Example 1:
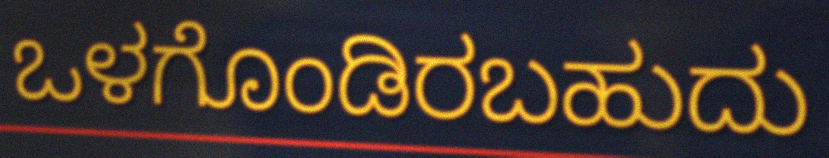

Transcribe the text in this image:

ಒಳಗೊಂಡಿರಬಹುದು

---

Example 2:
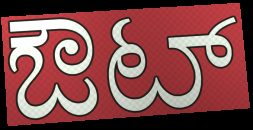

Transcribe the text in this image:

ಔಟ್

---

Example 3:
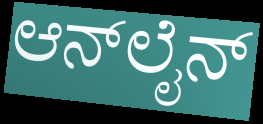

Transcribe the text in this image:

ಆನ್‍ಲೈನ್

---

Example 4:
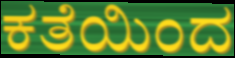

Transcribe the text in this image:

ಕತೆಯಿಂದ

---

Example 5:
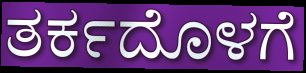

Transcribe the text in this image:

ತರ್ಕದೊಳಗೆ